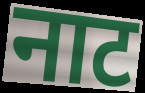
नाट